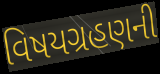
વિષયગ્રહણની